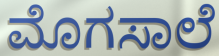
ಮೊಗಸಾಲೆ